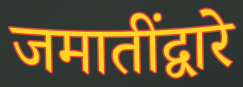
जमातींद्वारे